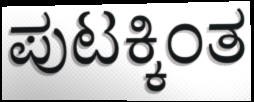
ಪುಟಕ್ಕಿಂತ